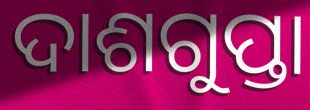
ଦାଶଗୁପ୍ତା